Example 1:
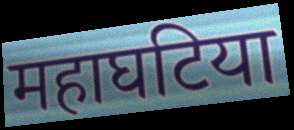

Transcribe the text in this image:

महाघटिया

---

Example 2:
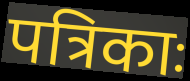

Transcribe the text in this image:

पत्रिकाः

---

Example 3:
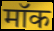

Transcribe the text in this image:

मॉक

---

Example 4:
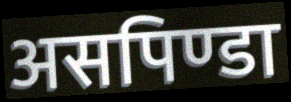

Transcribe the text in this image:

असपिण्डा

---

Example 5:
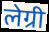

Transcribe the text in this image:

लेग्री